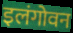
इलंगोवन